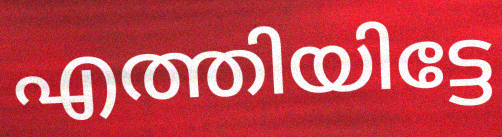
എത്തിയിട്ടേ